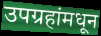
उपग्रहांमधून